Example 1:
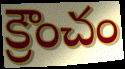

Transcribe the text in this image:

క్రౌంచం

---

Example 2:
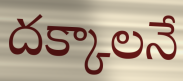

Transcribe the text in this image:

దక్కాలనే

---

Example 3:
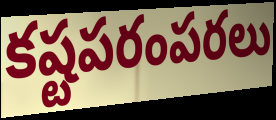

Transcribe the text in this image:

కష్టపరంపరలు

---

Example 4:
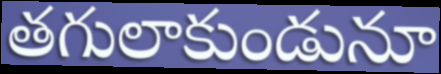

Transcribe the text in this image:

తగులాకుండునూ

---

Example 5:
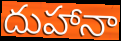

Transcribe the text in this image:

దుహానా